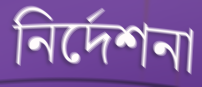
নিৰ্দেশনা